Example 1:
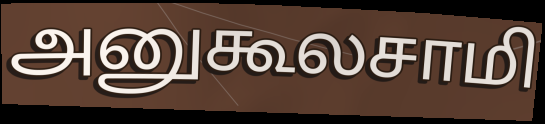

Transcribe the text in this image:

அனுகூலசாமி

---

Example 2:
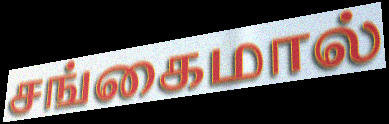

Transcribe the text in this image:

சங்கைமால்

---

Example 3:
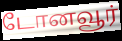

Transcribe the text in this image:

டோனவூர்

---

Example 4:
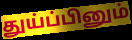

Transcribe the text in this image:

துய்ப்பினும்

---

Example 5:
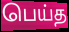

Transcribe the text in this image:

பெய்த